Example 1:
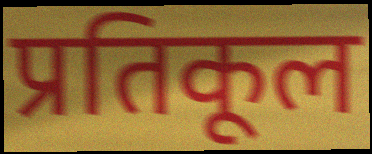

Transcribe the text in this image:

प्रतिकूल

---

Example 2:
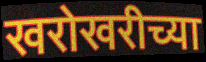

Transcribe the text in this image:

खरोखरीच्या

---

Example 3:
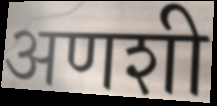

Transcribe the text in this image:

अणशी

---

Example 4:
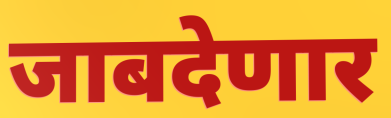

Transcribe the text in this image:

जाबदेणार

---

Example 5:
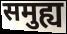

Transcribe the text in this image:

समुह्य